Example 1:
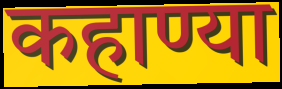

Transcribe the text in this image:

कहाण्या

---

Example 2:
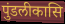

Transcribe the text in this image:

पुंडलीकासि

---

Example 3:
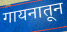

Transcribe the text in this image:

गायनातून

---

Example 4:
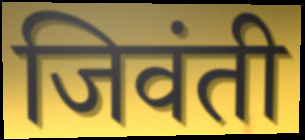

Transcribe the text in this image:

जिवंती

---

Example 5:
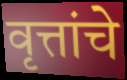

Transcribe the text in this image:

वृत्तांचे